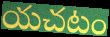
యచటం